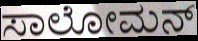
ಸಾಲೋಮನ್